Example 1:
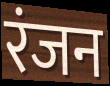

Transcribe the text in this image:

रंजन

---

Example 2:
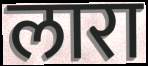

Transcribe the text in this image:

लारा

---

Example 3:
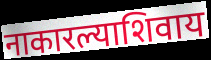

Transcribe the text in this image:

नाकारल्याशिवाय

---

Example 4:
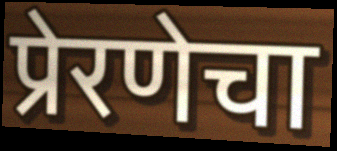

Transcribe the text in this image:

प्रेरणेचा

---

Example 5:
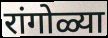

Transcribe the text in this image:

रांगोळ्या